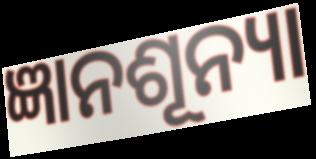
ଜ୍ଞାନଶୂନ୍ୟା